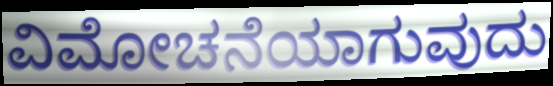
ವಿಮೋಚನೆಯಾಗುವುದು